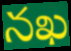
నఖ